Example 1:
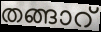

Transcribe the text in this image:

തങ്ങാറ്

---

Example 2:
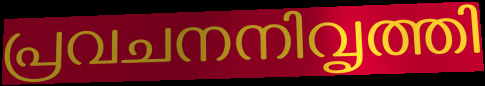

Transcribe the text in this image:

പ്രവചനനിവൃത്തി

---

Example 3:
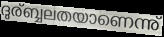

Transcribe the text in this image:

ദുര്ബ്ബലതയാണെന്നു്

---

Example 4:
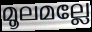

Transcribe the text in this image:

മൂലമല്ലേ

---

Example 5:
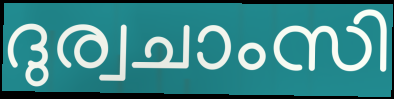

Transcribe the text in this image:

ദുര്വചാംസി